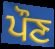
ਪੌਣ